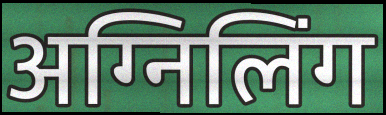
अग्निलिंग